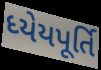
ધ્યેયપૂર્તિ